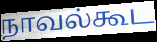
நாவல்கூட